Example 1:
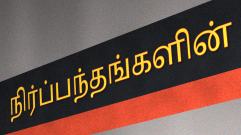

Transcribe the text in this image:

நிர்ப்பந்தங்களின்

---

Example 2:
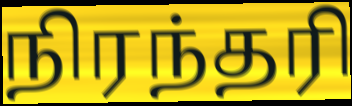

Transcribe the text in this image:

நிரந்தரி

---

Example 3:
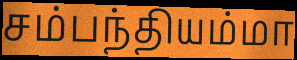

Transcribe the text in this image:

சம்பந்தியம்மா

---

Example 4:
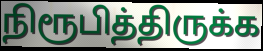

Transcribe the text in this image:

நிரூபித்திருக்க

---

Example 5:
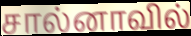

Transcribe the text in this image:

சால்னாவில்